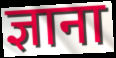
ज्ञाना